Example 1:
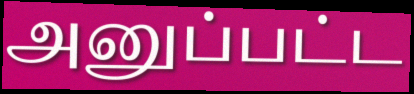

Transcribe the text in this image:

அனுப்பட்ட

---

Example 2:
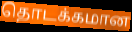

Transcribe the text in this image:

தொடக்கமான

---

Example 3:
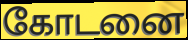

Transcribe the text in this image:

கோடனை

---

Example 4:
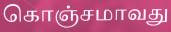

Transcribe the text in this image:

கொஞ்சமாவது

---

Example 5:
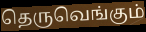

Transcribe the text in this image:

தெருவெங்கும்